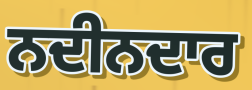
ਨਦੀਨਦਾਰ